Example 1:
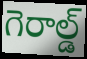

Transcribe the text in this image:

గెరాల్డ్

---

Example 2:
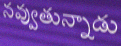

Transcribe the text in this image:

నవ్వుతున్నాడు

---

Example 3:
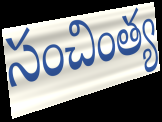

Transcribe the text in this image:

సంచింత్య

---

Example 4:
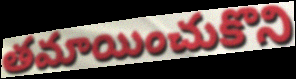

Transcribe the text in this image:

తమాయించుకొని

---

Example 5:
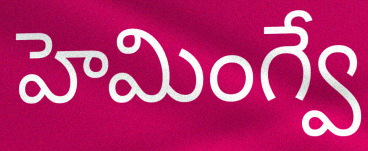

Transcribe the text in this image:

హెమింగ్వే